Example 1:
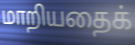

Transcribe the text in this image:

மாறியதைக்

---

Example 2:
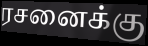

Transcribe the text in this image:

ரசனைக்கு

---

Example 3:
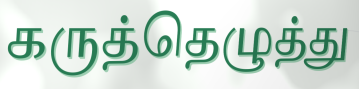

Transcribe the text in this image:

கருத்தெழுத்து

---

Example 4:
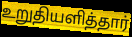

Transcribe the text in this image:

உறுதியளித்தார்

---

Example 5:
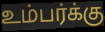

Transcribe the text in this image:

உம்பர்க்கு